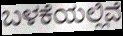
ಬಳಕೆಯಲ್ಲಿವೆ